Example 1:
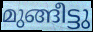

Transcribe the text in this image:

മുങ്ങീട്ടു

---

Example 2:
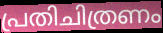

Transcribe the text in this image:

പ്രതിചിത്രണം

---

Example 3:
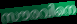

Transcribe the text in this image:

സൗരവിനെ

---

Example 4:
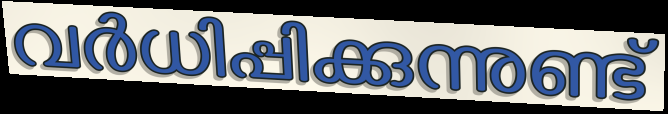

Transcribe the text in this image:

വർധിപ്പിക്കുന്നുണ്ട്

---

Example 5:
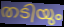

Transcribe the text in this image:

തടിയും